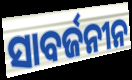
ସାବର୍ଜନୀନ